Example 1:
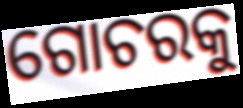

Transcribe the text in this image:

ଗୋଚରକୁ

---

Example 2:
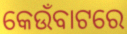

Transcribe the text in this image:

କେଉଁବାଟରେ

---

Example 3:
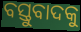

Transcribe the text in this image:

ବସ୍ତୁବାଦକୁ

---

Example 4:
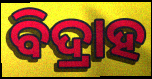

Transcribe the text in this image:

ବିଦ୍ରାହ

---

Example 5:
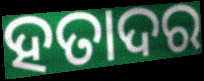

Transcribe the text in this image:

ହତାଦର